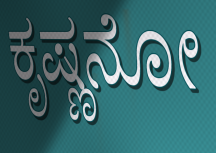
ಕೃಷ್ಣನೋ